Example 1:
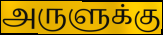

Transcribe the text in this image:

அருளுக்கு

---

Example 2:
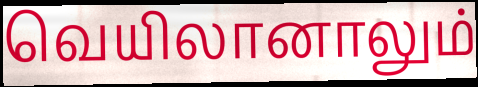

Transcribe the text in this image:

வெயிலானாலும்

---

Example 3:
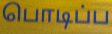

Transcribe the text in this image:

பொடிப்ப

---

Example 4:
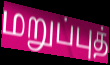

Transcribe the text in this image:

மறுப்புத்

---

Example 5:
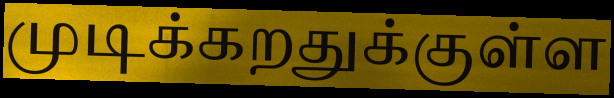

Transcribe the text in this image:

முடிக்கறதுக்குள்ள